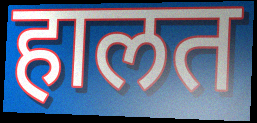
हालत